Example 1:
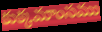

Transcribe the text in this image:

కుక్కమాంసము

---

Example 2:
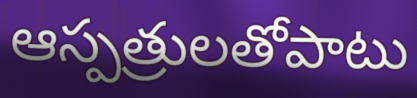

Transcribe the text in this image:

ఆస్పత్రులతోపాటు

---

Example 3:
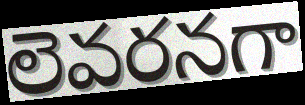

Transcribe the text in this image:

లెవరనగా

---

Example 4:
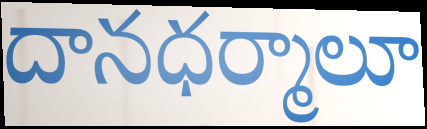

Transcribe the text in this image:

దానధర్మాలూ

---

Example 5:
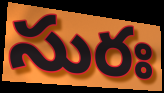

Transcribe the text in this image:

సురః